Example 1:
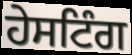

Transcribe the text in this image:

ਹੇਸਟਿੰਗ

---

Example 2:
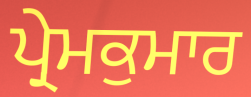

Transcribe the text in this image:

ਪ੍ਰੇਮਕੁਮਾਰ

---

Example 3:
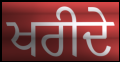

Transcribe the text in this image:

ਖਰੀਦੇ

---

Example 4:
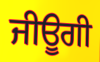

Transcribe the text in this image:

ਜੀਊਗੀ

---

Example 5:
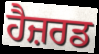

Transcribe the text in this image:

ਹੈਜ਼ਰਡ